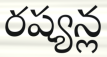
రష్యన్ల